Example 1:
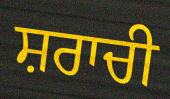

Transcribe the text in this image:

ਸ਼ਰਾਚੀ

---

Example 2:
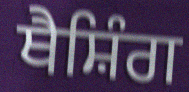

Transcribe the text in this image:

ਥੈਸ਼ਿੰਗ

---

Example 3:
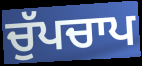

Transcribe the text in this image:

ਚੁੱਪਚਾਪ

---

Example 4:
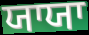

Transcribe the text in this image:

ਯਾਯਾ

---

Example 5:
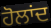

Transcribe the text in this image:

ਹੋਲਾਂਦ